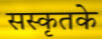
सस्कृतके